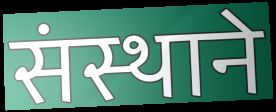
संस्थाने